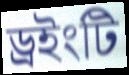
ড্রইংটি